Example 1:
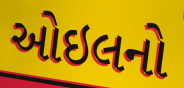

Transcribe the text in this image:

ઓઇલનો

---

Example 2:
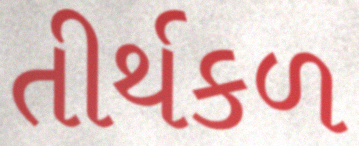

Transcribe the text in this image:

તીર્થકળ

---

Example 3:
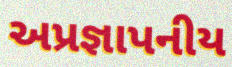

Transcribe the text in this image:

અપ્રજ્ઞાપનીય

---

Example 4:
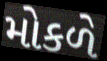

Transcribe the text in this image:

મોકળે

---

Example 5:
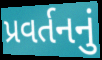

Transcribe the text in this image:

પ્રવર્તનનું